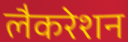
लैकरेशन